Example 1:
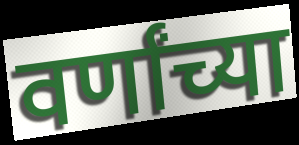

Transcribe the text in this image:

वर्णांच्या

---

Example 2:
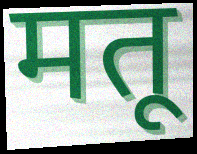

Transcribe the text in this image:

मतू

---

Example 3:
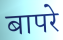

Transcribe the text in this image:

बापरे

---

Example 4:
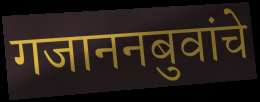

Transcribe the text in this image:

गजाननबुवांचे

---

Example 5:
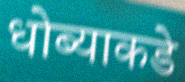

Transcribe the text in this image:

धोब्याकडे